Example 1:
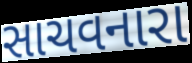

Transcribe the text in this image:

સાચવનારા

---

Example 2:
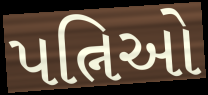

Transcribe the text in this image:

પત્નિઓ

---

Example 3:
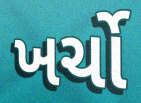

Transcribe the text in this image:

ખર્ચો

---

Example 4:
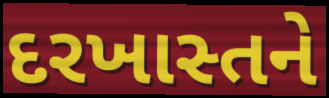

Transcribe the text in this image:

દરખાસ્તને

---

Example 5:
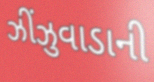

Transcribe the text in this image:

ઝીંઝુવાડાની